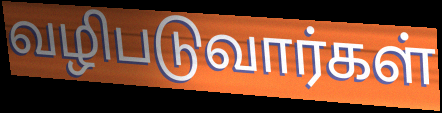
வழிபடுவார்கள்